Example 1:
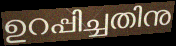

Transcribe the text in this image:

ഉറപ്പിച്ചതിനു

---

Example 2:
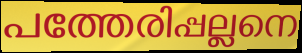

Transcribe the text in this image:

പത്തേരിപ്പല്ലനെ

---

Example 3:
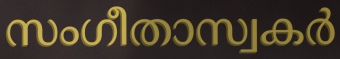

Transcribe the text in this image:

സംഗീതാസ്വകർ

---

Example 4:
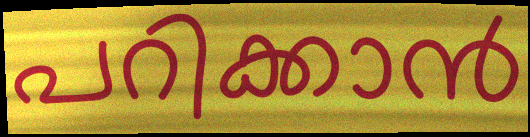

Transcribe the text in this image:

പറിക്കാൻ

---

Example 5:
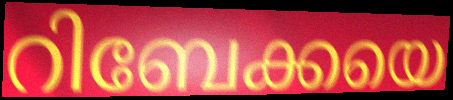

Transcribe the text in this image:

റിബേക്കയെ